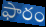
ఫారం